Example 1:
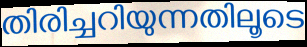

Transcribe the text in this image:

തിരിച്ചറിയുന്നതിലൂടെ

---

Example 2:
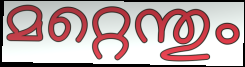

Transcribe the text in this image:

മറ്റെന്തും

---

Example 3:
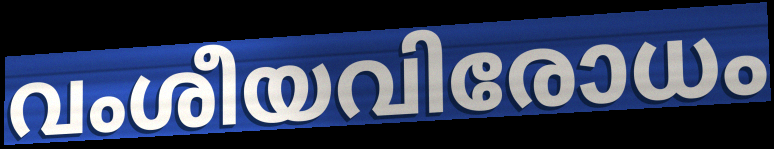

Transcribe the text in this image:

വംശീയവിരോധം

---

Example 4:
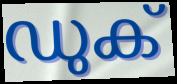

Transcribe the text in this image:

ഡുക്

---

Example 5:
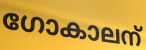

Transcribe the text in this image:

ഗോകാലന്